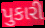
પુકારી